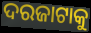
ଦରଜାଟାକୁ